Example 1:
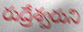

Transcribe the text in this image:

రుద్రేశ్వరుని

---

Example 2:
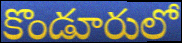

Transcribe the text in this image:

కొండూరులో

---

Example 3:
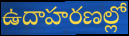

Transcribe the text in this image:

ఉదాహరణల్లో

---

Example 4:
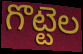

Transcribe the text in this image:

గొట్టెల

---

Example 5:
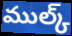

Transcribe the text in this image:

ముల్క్